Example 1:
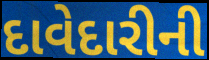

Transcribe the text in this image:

દાવેદારીની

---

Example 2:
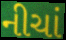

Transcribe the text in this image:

નીચાં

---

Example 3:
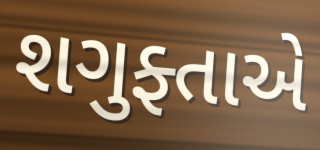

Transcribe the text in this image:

શગુફ્તાએ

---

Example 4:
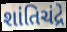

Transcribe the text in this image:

શાંતિચંદ્રે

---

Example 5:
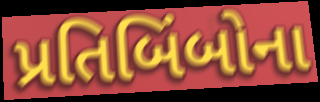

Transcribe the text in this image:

પ્રતિબિંબોના